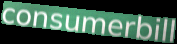
consumerbill